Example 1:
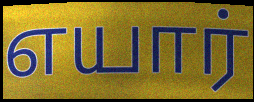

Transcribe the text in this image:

எயார்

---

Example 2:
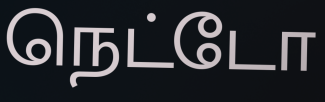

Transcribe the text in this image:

நெட்டோ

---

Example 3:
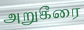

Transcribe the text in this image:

அறுகீரை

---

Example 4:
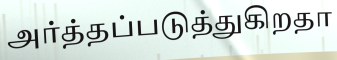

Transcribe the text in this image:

அர்த்தப்படுத்துகிறதா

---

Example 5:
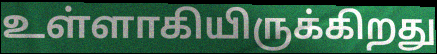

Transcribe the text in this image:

உள்ளாகியிருக்கிறது